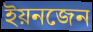
ইয়নজেন